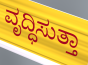
ವೃದ್ಧಿಸುತ್ತಾ